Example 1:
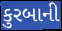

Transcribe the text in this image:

કુરબાની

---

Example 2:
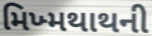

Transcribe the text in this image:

મિખ્મથાથની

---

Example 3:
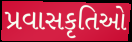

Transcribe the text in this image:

પ્રવાસકૃતિઓ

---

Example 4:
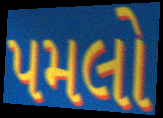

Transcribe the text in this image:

પમલો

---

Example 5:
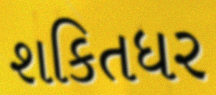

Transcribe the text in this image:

શકિતધર